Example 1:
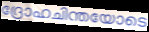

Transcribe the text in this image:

ദ്രോഹചിന്തയോടെ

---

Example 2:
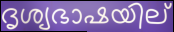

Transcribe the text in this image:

ദൃശ്യഭാഷയില്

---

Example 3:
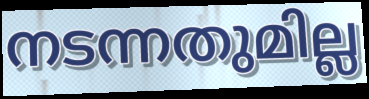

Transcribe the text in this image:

നടന്നതുമില്ല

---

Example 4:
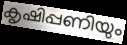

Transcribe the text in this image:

കൃഷിപ്പണിയും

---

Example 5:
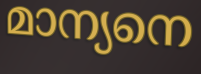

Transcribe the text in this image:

മാന്യനെ